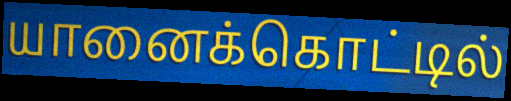
யானைக்கொட்டில்